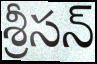
శ్రీసన్